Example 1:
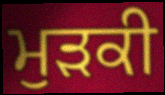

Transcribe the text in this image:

ਮੁੜਕੀ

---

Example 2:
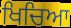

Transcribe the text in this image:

ਖਿਚਿਆ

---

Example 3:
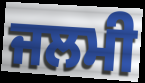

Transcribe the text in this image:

ਜਲਮੀ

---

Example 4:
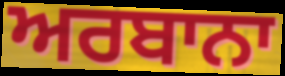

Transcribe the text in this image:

ਅਰਬਾਨਾ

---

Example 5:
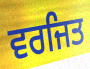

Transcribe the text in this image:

ਵਰਜਿਤ